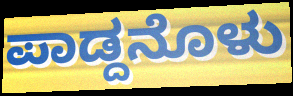
ಪಾಡ್ದನೊಳು